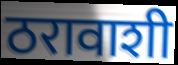
ठरावाशी